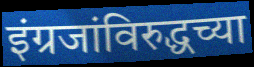
इंग्रजांविरुद्धच्या